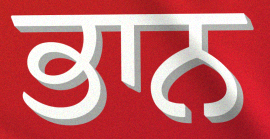
ਭਾਨ